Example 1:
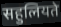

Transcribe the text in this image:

सहुलियते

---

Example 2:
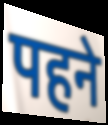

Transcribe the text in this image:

पहने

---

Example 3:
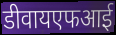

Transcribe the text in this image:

डीवायएफआई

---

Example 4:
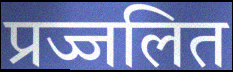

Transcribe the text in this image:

प्रज्जलित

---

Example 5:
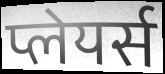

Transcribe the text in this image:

प्‍लेयर्स